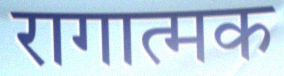
रागात्मक